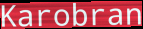
Karobran